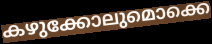
കഴുക്കോലുമൊക്കെ